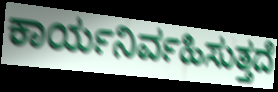
ಕಾರ್ಯನಿರ್ವಹಿಸುತ್ತದೆ